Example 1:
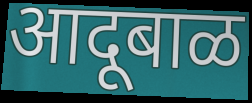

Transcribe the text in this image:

आदूबाळ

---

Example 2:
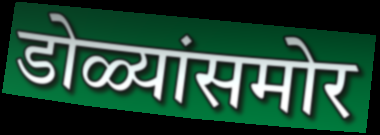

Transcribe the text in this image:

डोळ्यांसमोर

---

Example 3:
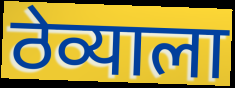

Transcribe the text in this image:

ठेव्याला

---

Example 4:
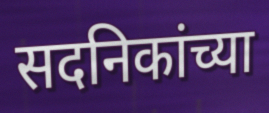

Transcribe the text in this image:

सदनिकांच्या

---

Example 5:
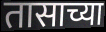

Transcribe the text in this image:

तासाच्या